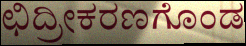
ಛಿದ್ರೀಕರಣಗೊಂಡ